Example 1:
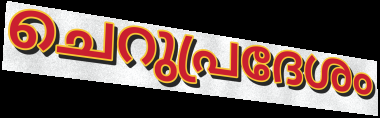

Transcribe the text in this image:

ചെറുപ്രദേശം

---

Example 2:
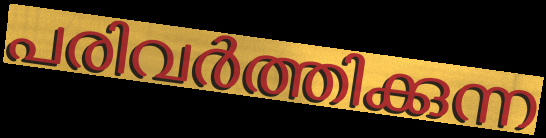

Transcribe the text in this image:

പരിവർത്തിക്കുന്ന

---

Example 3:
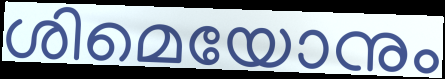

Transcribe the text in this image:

ശിമെയോനും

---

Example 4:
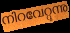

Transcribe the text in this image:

നിറവേറ്റുന്നു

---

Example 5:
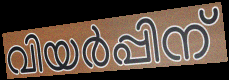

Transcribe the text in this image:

വിയർപ്പിന്